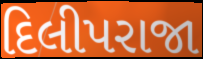
દિલીપરાજા